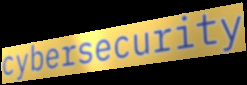
cybersecurity